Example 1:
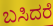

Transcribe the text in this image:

ಬಸಿದರೆ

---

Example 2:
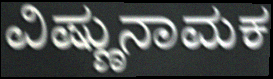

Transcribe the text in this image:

ವಿಷ್ಣುನಾಮಕ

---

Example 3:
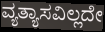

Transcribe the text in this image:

ವ್ಯತ್ಯಾಸವಿಲ್ಲದೇ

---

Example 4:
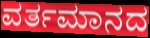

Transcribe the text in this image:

ವರ್ತಮಾನದ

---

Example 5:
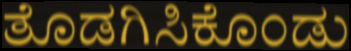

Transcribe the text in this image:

ತೊಡಗಿಸಿಕೊಂಡು